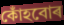
কোঁহবোৰ